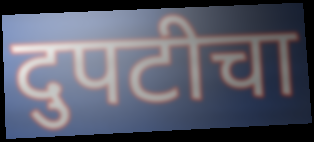
दुपटीचा